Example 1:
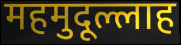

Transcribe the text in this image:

महमुदूल्लाह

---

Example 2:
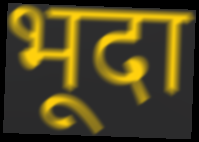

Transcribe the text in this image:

भूदा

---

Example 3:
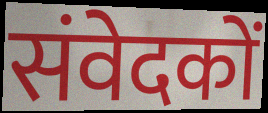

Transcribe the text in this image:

संवेदकों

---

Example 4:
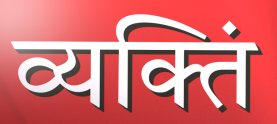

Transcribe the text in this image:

व्यक्तिं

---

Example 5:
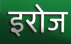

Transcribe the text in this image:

इरोज